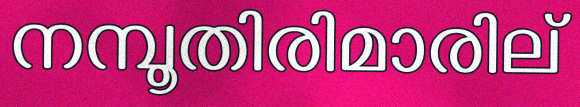
നമ്പൂതിരിമാരില്